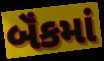
બૅંકમાં